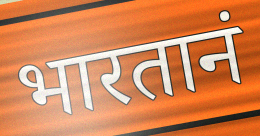
भारतानं